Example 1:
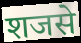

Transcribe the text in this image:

शजसे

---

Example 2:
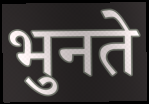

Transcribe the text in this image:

भुनते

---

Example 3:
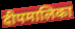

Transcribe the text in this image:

दीपमालिका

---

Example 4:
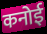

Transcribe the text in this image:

कनोई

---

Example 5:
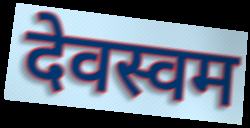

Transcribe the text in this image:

देवस्वम